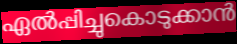
ഏൽപ്പിച്ചുകൊടുക്കാൻ